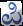
ಪಿ